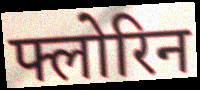
फ्लोरिन